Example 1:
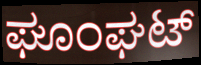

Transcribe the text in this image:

ಘೂಂಘಟ್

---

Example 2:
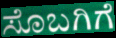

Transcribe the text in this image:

ಸೊಬಗಿಗೆ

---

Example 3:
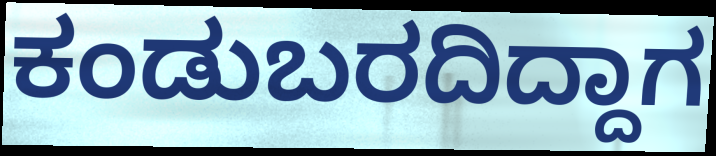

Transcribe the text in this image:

ಕಂಡುಬರದಿದ್ದಾಗ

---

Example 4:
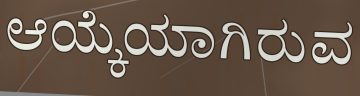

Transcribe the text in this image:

ಆಯ್ಕೆಯಾಗಿರುವ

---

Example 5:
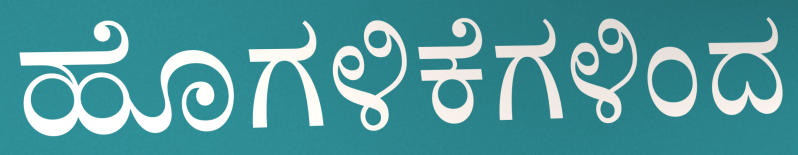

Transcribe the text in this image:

ಹೊಗಳಿಕೆಗಳಿಂದ